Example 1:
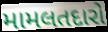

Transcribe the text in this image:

મામલતદારો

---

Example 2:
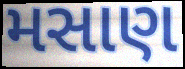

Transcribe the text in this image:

મસાણ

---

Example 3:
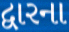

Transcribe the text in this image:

દ્વારના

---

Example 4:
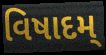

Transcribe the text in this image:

વિષાદમ્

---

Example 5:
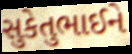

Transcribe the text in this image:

સુકેતુભાઈને